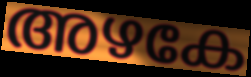
അഴകേ